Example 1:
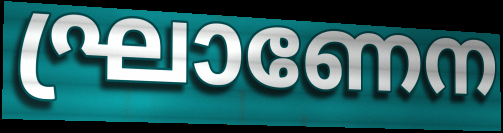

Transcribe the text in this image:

ഘ്രാണേന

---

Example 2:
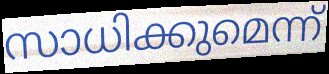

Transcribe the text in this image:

സാധിക്കുമെന്ന്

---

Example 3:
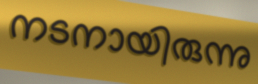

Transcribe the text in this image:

നടനായിരുന്നു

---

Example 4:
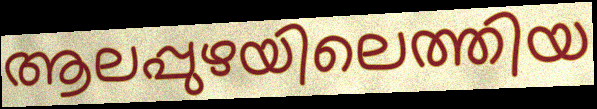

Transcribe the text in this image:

ആലപ്പുഴയിലെത്തിയ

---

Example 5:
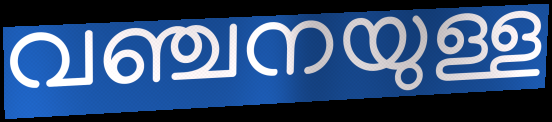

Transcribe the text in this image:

വഞ്ചനയുള്ള